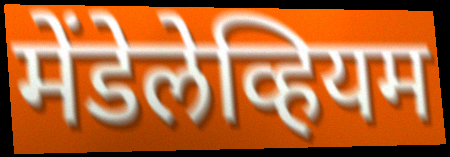
मेंडेलेव्हियम